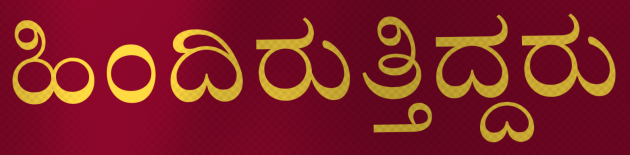
ಹಿಂದಿರುತ್ತಿದ್ದರು